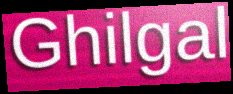
Ghilgal